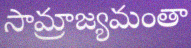
సామ్రాజ్యమంతా